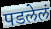
पडलेलं